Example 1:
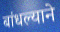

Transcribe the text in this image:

बांधल्याने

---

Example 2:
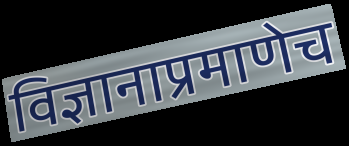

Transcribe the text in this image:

विज्ञानाप्रमाणेच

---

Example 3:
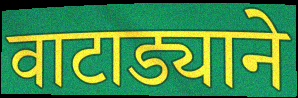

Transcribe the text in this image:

वाटाड्याने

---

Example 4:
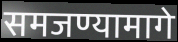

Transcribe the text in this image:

समजण्यामागे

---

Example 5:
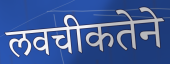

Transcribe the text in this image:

लवचीकतेने